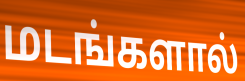
மடங்களால்